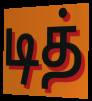
டித்